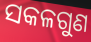
ସକଳଗୁଣ